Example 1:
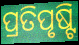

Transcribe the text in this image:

ପ୍ରତିପୃଷ୍ଟି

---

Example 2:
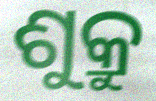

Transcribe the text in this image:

ଶୁକ୍ରୁ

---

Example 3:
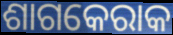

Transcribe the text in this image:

ଶାଗକେରାକ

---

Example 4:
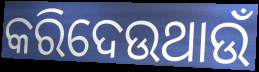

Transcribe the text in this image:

କରିଦେଉଥାଉଁ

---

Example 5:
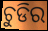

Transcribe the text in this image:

ଚୁଡିର